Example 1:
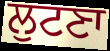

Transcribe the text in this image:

ਲੁਟਣਾ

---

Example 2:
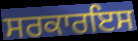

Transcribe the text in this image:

ਸਰਕਾਰਇਸ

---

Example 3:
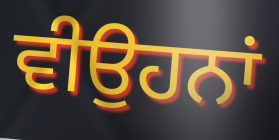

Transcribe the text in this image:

ਵੀਉਹਨਾਂ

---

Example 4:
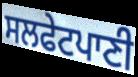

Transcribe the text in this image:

ਸਲਫੇਟਪਾਣੀ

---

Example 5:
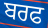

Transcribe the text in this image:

ਬਰਫ